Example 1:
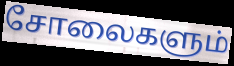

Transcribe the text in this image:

சோலைகளும்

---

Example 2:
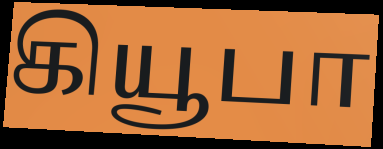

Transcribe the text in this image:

கியூபா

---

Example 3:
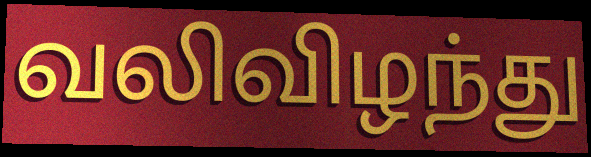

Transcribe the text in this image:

வலிவிழந்து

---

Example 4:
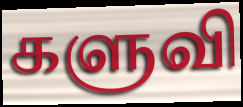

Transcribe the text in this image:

களுவி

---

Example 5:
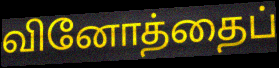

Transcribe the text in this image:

வினோத்தைப்